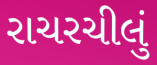
રાચરચીલું